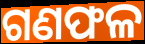
ଗଣଫଳ